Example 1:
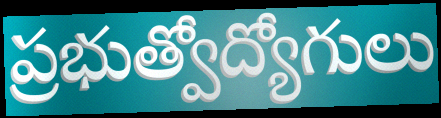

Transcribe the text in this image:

ప్రభుత్వోద్యోగులు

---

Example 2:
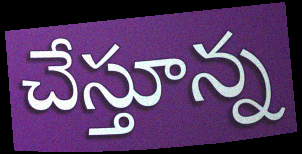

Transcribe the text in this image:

చేస్తూన్న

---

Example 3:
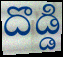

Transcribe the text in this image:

దొడ్డి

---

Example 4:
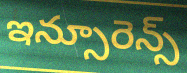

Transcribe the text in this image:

ఇన్సూరెన్స్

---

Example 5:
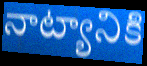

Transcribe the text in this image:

నాట్యానికి